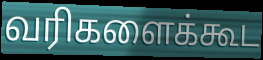
வரிகளைக்கூட